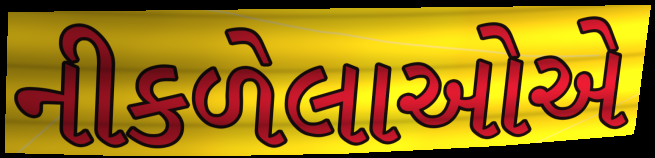
નીકળેલાઓએ